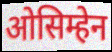
ओसिम्हेन